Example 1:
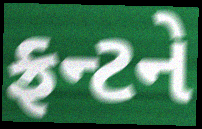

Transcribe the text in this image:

ફ્રન્ટને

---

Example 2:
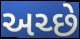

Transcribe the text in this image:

અચ્છે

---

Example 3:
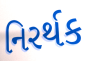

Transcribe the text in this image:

નિરર્થક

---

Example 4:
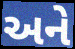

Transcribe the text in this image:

અને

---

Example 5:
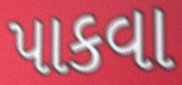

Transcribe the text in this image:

પાકવા